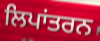
ਲਿਪਾਂਤਰਨ